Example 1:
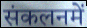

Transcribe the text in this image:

संकलनमें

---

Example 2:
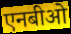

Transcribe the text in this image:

एनबीओ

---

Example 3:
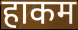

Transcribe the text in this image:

हाकम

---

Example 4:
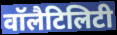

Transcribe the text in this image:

वॉलैटिलिटी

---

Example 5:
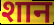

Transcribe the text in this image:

शान